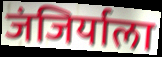
जंजिर्याला